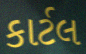
કાર્ટલ